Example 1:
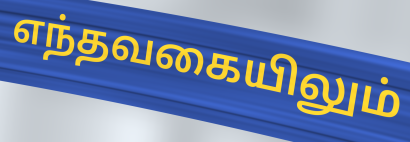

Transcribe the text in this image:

எந்தவகையிலும்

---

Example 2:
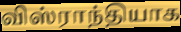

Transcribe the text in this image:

விஸ்ராந்தியாக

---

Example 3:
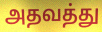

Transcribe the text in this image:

அதவத்து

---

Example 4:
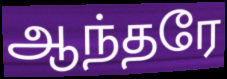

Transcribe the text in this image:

ஆந்தரே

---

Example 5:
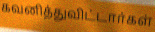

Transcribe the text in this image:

கவனித்துவிட்டார்கள்